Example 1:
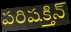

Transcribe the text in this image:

పరిషక్తిన్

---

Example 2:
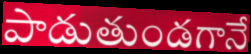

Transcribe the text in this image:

పాడుతుండగానే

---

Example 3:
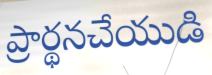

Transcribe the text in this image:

ప్రార్థనచేయుడి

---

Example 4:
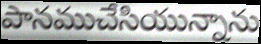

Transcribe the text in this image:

పానముచేసియున్నాను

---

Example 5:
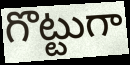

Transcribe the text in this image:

గొట్టుగా